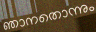
ഞാനതൊന്നും